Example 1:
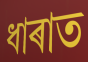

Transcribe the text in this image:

ধাৰাত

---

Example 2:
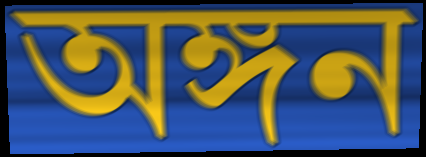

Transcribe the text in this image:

অঙ্গন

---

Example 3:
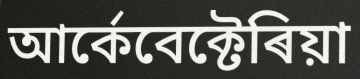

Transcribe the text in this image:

আৰ্কেবেক্টেৰিয়া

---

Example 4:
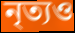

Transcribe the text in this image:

নৃত্যও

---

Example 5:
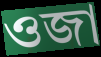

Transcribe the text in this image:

ওজা